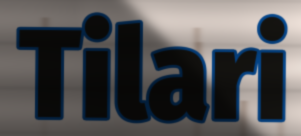
Tilari